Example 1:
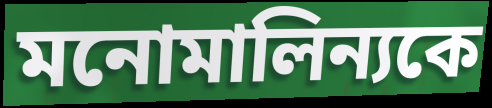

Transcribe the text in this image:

মনোমালিন্যকে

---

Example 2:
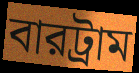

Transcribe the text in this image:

বারট্রাম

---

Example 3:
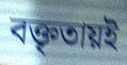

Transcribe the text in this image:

বক্তৃতায়ই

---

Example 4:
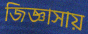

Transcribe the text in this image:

জিজ্ঞাসায়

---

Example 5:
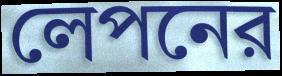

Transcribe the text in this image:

লেপনের